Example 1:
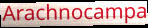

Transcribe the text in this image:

Arachnocampa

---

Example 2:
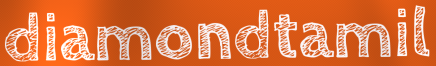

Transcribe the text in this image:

diamondtamil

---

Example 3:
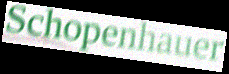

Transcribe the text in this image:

Schopenhauer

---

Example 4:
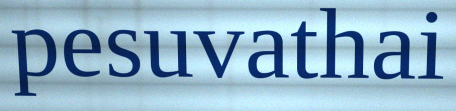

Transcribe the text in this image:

pesuvathai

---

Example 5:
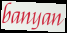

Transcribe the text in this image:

banyan